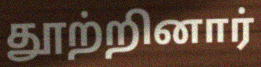
தூற்றினார்